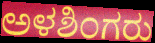
ಅಳಶಿಂಗರು